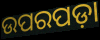
ଉପରପଡ଼ା